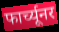
फार्च्यूनर